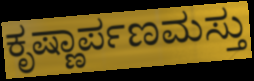
ಕೃಷ್ಣಾರ್ಪಣಮಸ್ತು